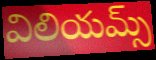
విలియమ్స్